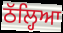
ਠੱਲ੍ਹਿਆ